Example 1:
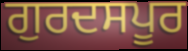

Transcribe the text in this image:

ਗੁਰਦਸਪੂਰ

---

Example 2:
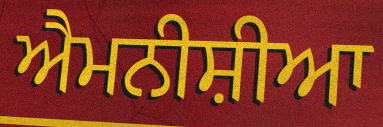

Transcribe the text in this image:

ਐਮਨੀਸ਼ੀਆ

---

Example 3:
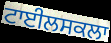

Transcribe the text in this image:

ਟਾਈਲਸਕਲਾ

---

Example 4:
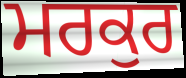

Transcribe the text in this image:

ਮਰਕੁਰ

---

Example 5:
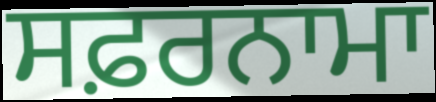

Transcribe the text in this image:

ਸਫ਼ਰਨਾਮਾ